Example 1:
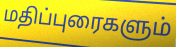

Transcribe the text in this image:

மதிப்புரைகளும்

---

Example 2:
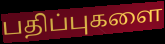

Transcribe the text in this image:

பதிப்புகளை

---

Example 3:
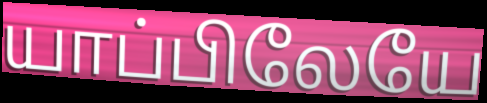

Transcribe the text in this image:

யாப்பிலேயே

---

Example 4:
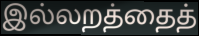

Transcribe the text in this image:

இல்லறத்தைத்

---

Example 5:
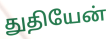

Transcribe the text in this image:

துதியேன்